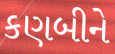
કણબીને